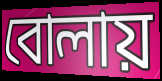
বোলায়